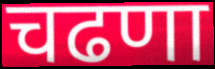
चढणा